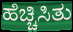
ಹೆಚ್ಚಿಸಿತು